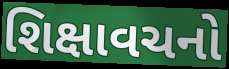
શિક્ષાવચનો